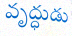
వృద్ధుడు